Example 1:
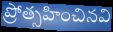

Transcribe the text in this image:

ప్రోత్సహించినవి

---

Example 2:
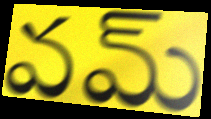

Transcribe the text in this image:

వమ్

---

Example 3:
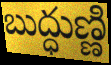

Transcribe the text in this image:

బుద్ధుణ్ణి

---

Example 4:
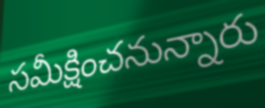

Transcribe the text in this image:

సమీక్షించనున్నారు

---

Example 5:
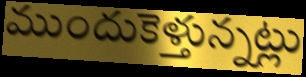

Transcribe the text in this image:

ముందుకెళ్తున్నట్లు